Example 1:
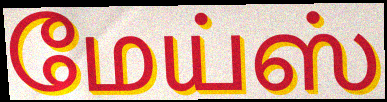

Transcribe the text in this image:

மேய்ஸ்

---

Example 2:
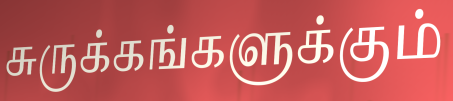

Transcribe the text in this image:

சுருக்கங்களுக்கும்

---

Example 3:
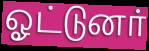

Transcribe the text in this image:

ஓட்டுனர்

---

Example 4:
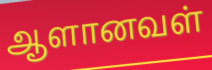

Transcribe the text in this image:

ஆளானவள்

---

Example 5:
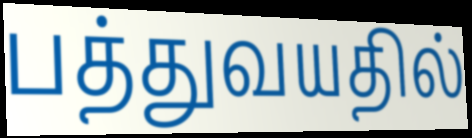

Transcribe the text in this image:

பத்துவயதில்